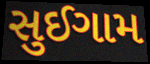
સુઈગામ